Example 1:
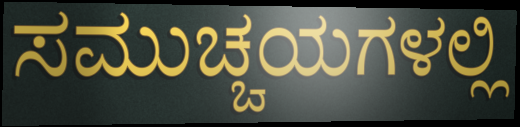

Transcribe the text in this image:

ಸಮುಚ್ಚಯಗಳಲ್ಲಿ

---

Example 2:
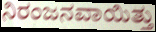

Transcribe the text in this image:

ನಿರಂಜನವಾಯಿತ್ತು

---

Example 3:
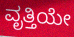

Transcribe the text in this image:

ವೃತ್ತಿಯೇ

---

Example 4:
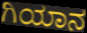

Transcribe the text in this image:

ಗಿಯಾನ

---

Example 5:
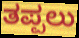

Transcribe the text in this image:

ತಪ್ಪಲು